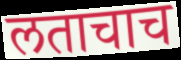
लताचाच